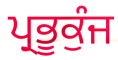
ਪ੍ਰਭੂਕੁੰਜ